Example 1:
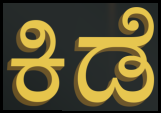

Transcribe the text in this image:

ಕಿಡೆ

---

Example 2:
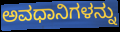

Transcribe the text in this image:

ಅವಧಾನಿಗಳನ್ನು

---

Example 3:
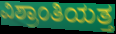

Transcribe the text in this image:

ವಿಶ್ರಾಂತಿಯತ್ತ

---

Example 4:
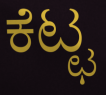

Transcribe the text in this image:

ಕೆಟ್ಟ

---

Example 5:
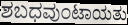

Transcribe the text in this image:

ಶಬಧವುಂಟಾಯತು